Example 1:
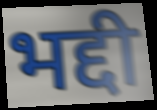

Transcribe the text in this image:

भद्दी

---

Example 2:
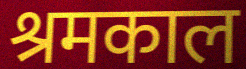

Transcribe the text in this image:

श्रमकाल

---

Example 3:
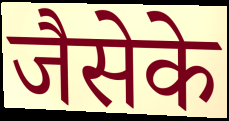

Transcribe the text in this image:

जैसेके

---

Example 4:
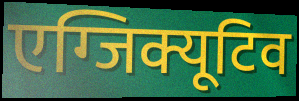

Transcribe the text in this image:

एग्जिक्यूटिव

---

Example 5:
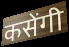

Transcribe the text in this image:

कसेंगी